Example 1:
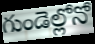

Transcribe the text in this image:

గుండెల్లోనో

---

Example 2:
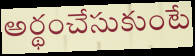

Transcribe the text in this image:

అర్థంచేసుకుంటే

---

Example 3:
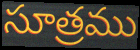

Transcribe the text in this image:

సూత్రము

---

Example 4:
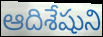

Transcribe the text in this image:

ఆదిశేషుని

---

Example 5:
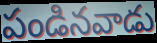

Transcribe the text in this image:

పండినవాడు